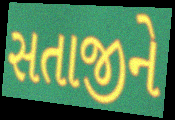
સતાજીને